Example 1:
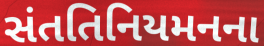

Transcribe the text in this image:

સંતતિનિયમનના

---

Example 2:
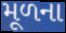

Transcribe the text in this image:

મૂળના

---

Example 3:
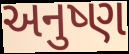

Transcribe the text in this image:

અનુષ્ણ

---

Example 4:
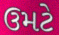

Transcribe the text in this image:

ઉમટે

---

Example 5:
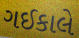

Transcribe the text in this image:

ગઈકાલે